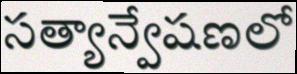
సత్యాన్వేషణలో